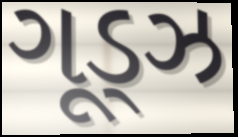
ગૂડ્ઝ